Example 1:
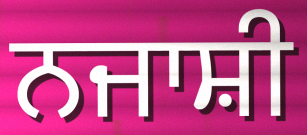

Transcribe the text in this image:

ਨਜਾਸ਼ੀ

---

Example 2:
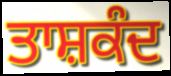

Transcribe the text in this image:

ਤਾਸ਼ਕੰਦ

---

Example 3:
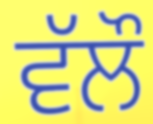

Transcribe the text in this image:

ਵੱਲੌ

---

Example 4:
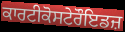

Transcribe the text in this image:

ਕਾਰਟੀਕੋਸਟੇਰੌਇਡਜ਼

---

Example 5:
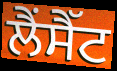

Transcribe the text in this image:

ਲੈਂਸੈੱਟ